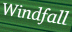
Windfall